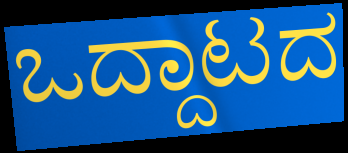
ಒದ್ದಾಟದ